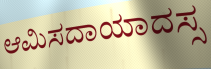
ಆಮಿಸದಾಯಾದಸ್ಸ